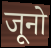
जूनो